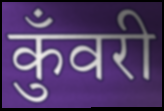
कुँवरी